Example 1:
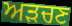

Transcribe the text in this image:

ਅੜਚਣ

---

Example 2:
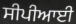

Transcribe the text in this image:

ਸੀਪੀਆਈ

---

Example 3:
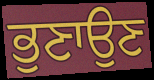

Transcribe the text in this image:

ਭੁਣਾਉਣ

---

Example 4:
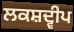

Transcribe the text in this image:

ਲਕਸ਼ਦ੍ਵੀਪ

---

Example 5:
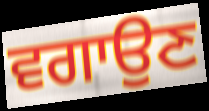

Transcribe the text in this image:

ਵਗਾਉਣ